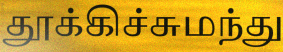
தூக்கிச்சுமந்து